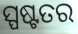
ସ୍ପଷ୍ଟତର